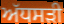
ਅੱਧਸੜੀ